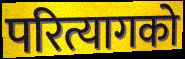
परित्यागको